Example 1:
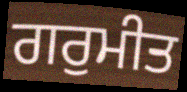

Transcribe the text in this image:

ਗਰੁਮੀਤ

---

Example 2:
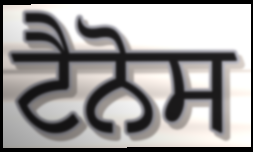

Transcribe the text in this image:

ਟੈਨੋਸ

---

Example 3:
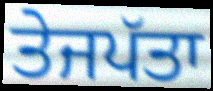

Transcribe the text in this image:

ਤੇਜਪੱਤਾ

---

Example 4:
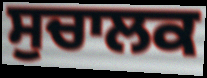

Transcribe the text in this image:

ਸੁਚਾਲਕ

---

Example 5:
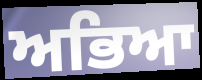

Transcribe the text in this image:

ਅਭਿਆ